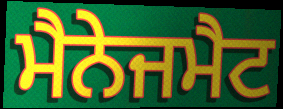
ਮੈਨੇਜਮੈਟ